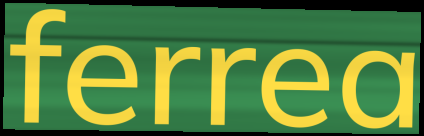
ferrea